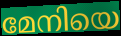
മേനിയെ